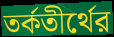
তর্কতীর্থের